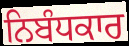
ਨਿਬੰਧਕਾਰ